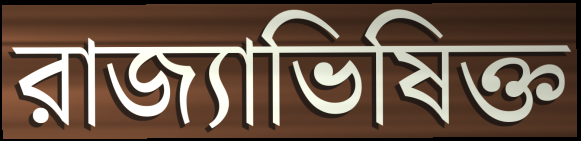
রাজ্যাভিষিক্ত